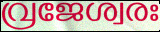
വ്രജേശ്വരഃ